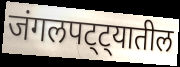
जंगलपट्ट्यातील